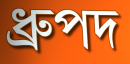
ধ্রুপদ